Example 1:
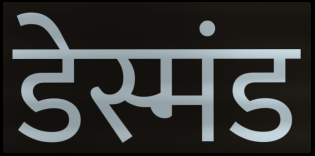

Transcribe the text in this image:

डेस्मंड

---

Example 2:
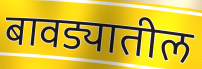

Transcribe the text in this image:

बावड्यातील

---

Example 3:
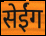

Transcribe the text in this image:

सेईंग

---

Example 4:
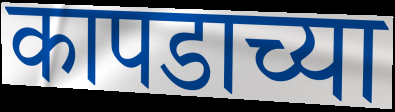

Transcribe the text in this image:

कापडाच्या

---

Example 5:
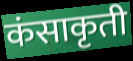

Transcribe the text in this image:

कंसाकृती